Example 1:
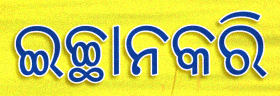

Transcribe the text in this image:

ଇଚ୍ଛାନକରି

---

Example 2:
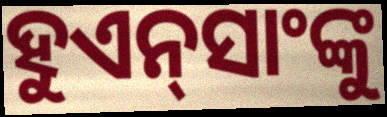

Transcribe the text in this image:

ହୁଏନ୍‌ସାଂଙ୍କୁ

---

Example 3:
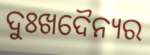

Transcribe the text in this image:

ଦୁଃଖଦୈନ୍ୟର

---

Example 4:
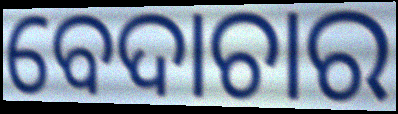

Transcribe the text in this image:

ବେଦାଚାର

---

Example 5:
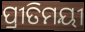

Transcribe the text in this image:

ପ୍ରୀତିମୟୀ